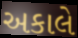
અકાલે